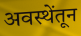
अवस्थेंतून